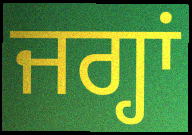
ਜਗ੍ਹਾਂ